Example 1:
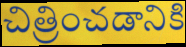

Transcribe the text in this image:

చిత్రించడానికి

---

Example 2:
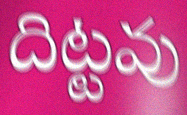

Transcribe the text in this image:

దిట్టవు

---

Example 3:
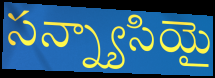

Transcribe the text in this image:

సన్న్యాసియై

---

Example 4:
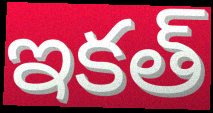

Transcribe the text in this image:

ఇకత్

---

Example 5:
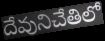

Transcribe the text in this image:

దేవునిచేతిలో